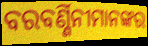
ବରବର୍ଣ୍ଣିନୀମାନଙ୍କର